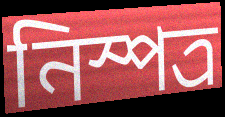
নিস্পত্র